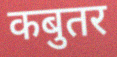
कबुतर